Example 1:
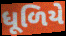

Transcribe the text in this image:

ધૂળિયે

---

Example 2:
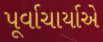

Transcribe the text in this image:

પૂર્વાચાર્યાએ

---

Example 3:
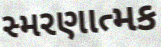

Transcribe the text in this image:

સ્મરણાત્મક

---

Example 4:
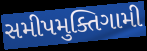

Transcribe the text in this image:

સમીપમુક્તિગામી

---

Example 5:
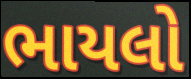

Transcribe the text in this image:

ભાયલો